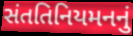
સંતતિનિયમનનું